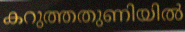
കറുത്തതുണിയിൽ